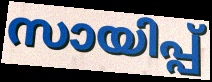
സായിപ്പ്